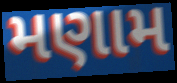
મણામ